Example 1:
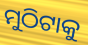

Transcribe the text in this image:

ମୁଠିଟାକୁ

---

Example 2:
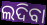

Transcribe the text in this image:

ଲଦିବା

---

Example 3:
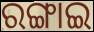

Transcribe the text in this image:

ରଙ୍ଗାଇ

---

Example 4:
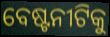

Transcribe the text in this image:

ବେଷ୍ଟନୀଟିକୁ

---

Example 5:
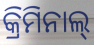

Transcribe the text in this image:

କ୍ରିମିନାଲ୍